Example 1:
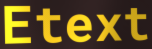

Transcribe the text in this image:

Etext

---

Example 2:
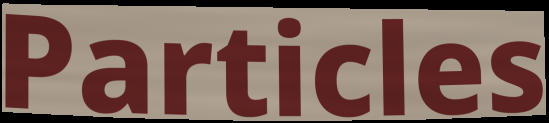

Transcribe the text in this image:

Particles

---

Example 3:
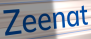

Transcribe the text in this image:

Zeenat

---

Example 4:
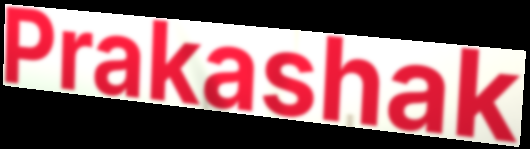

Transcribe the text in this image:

Prakashak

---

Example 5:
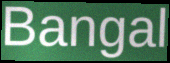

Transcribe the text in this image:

Bangal